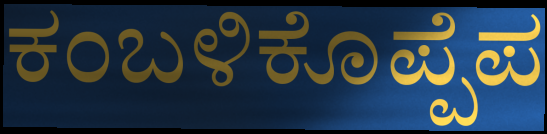
ಕಂಬಳಿಕೊಪ್ಪೆಪ